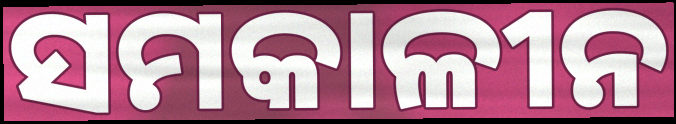
ସମକାଳୀନ